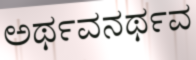
ಅರ್ಥವನರ್ಥವ